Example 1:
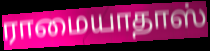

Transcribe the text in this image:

ராமையாதாஸ்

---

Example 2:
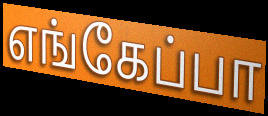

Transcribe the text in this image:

எங்கேப்பா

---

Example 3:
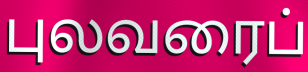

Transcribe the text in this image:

புலவரைப்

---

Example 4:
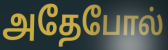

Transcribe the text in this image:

அதேபோல்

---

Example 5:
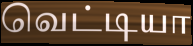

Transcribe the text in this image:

வெட்டியா